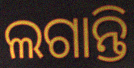
ଲଗାନ୍ତି